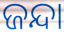
ଜନ୍ଦା